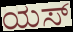
ಯಸ್